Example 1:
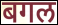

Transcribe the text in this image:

बगल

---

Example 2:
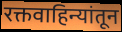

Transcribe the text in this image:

रक्तवाहिन्यांतून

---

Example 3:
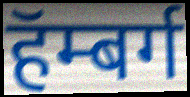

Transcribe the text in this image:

हॅम्बर्ग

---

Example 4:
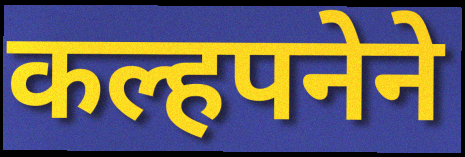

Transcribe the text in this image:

कल्हपनेने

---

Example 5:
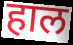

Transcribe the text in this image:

हाल